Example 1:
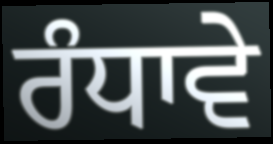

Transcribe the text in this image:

ਰੰਧਾਵੇ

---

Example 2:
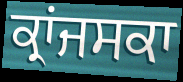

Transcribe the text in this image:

ਕ੍ਰਾਂਜਸਕਾ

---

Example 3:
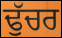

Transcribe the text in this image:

ਢੁੱਚਰ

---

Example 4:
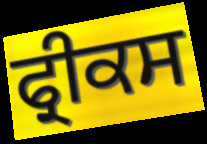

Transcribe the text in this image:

ਫ੍ਰੀਕਸ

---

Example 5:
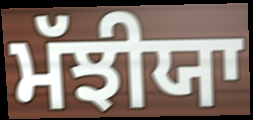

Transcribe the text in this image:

ਮੱਝੀਯਾ